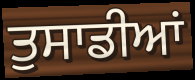
ਤੁਸਾਡੀਆਂ